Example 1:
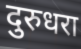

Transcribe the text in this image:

दुरुधरा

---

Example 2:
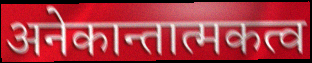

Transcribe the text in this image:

अनेकान्तात्मकत्व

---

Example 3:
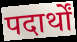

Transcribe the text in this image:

पदार्थों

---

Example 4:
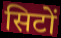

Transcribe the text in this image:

सिटों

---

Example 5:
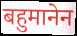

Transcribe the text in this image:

बहुमानेन